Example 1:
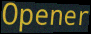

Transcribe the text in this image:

Opener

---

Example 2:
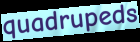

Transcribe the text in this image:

quadrupeds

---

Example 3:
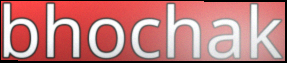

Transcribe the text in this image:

bhochak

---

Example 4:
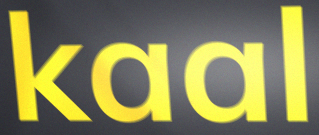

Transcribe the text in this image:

kaal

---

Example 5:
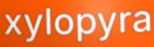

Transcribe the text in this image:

xylopyra